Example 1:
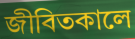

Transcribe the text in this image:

জীবিতকালে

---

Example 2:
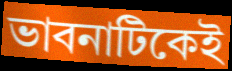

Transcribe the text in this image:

ভাবনাটিকেই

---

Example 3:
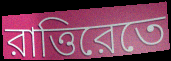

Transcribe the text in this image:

রাত্তিরেতে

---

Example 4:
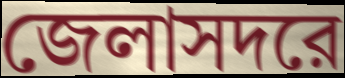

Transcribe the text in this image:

জেলাসদরে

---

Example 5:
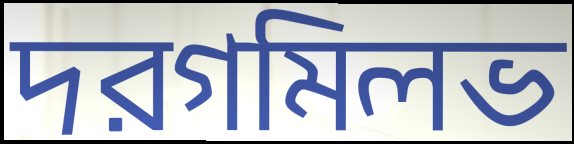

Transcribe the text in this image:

দরগমিলভ